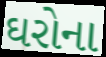
ઘરોના